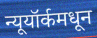
न्यूयॉर्कमधून